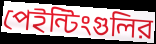
পেইন্টিংগুলির